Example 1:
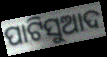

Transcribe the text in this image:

ପାଟିସୁଆଦ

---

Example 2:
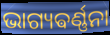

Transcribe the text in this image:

ଭାଗ୍ୟଵର୍ଣ୍ଣନା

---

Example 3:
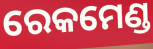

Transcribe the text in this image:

ରେକମେଣ୍ଡ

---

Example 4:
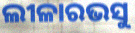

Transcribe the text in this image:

ଲୀଳାରଭସୁ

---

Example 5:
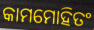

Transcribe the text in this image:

କାମମୋହିତଂ